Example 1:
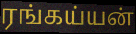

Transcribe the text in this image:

ரங்கய்யன்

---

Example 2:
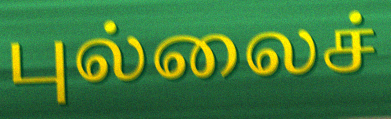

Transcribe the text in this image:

புல்லைச்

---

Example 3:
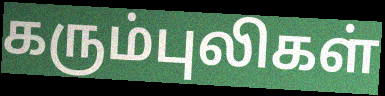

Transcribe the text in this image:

கரும்புலிகள்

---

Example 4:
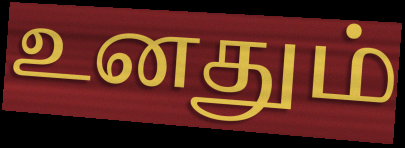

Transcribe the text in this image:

உனதும்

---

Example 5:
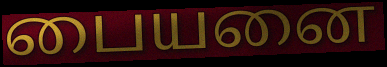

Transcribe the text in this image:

பையனை